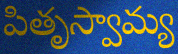
పితృస్వామ్య